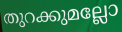
തുറക്കുമല്ലോ